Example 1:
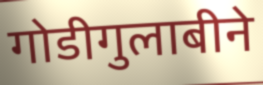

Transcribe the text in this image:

गोडीगुलाबीने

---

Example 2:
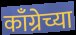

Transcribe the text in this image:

काँग्रेच्या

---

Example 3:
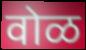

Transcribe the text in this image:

वोळ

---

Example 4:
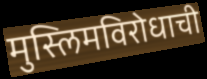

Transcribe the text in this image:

मुस्लिमविरोधाची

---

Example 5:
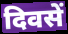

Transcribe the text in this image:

दिवसें